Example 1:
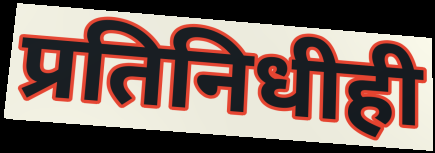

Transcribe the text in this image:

प्रतिनिधीही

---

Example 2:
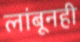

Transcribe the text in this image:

लांबूनही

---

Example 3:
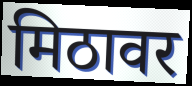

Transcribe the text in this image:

मिठावर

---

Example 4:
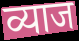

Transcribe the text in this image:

व्याज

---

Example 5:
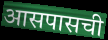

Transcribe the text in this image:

आसपासची